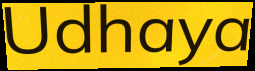
Udhaya